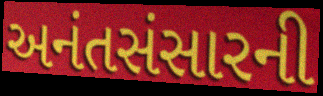
અનંતસંસારની